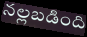
నల్లబడింది